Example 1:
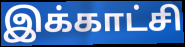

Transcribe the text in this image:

இக்காட்சி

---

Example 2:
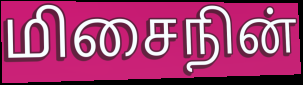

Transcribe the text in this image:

மிசைநின்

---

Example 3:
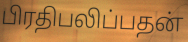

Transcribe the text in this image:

பிரதிபலிப்பதன்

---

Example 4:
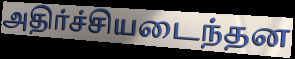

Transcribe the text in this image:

அதிர்ச்சியடைந்தன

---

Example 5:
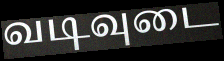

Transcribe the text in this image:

வடிவுடை